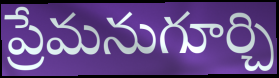
ప్రేమనుగూర్చి